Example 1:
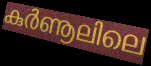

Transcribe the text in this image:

കുർണൂലിലെ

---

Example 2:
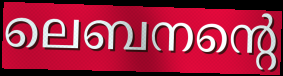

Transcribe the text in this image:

ലെബനന്റെ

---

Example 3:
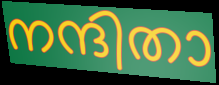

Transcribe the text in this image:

നന്ദിതാ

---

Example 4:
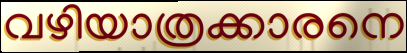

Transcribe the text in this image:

വഴിയാത്രക്കാരനെ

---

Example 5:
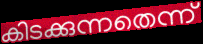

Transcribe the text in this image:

കിടക്കുന്നതെന്ന്